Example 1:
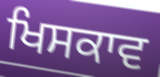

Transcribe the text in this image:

ਖਿਸਕਾਵ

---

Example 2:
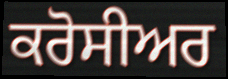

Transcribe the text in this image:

ਕਰੋਸੀਅਰ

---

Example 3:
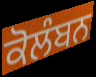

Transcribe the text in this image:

ਕੋਲੰਬਨ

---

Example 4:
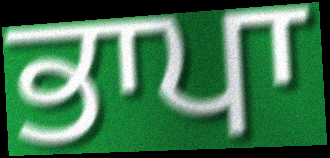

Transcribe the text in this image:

ਭਾਪਾ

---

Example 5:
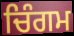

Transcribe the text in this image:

ਚਿੰਗਮ